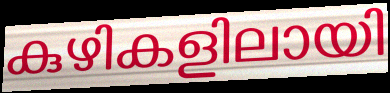
കുഴികളിലായി